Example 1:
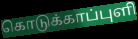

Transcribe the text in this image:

கொடுக்காப்புளி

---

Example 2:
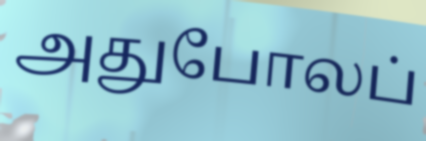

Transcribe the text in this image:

அதுபோலப்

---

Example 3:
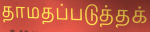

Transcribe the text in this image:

தாமதப்படுத்தக்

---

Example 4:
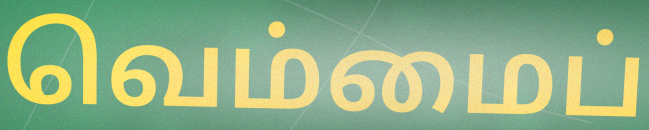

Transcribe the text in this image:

வெம்மைப்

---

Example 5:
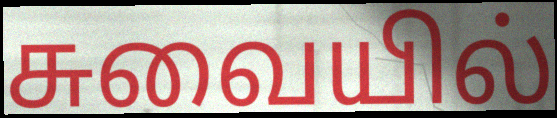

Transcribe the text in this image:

சுவையில்